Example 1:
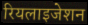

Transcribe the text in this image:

रियलाइजेशन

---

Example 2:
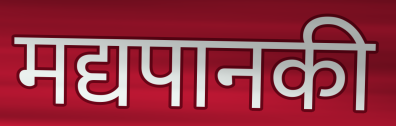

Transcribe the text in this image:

मद्यपानकी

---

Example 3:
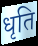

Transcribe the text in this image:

धृति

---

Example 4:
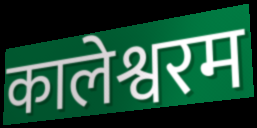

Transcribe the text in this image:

कालेश्वरम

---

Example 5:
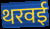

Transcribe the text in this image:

थरवई